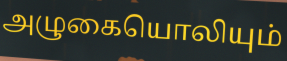
அழுகையொலியும்